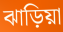
ঝাড়িয়া